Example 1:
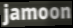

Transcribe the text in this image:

jamoon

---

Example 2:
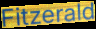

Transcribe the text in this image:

Fitzerald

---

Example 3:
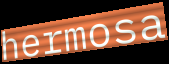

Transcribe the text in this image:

hermosa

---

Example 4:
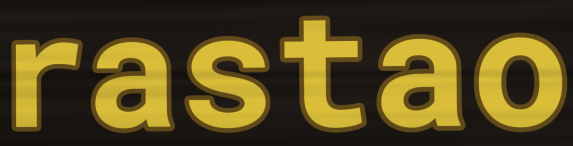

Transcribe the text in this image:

rastao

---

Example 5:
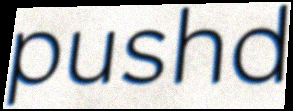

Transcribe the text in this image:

pushd